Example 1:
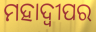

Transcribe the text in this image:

ମହାଦ୍ୱୀପର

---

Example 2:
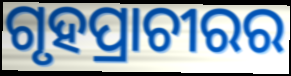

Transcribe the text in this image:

ଗୃହପ୍ରାଚୀରର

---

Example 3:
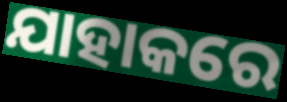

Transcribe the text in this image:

ଯାହାକରେ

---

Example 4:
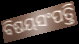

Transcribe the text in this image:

ବିଷୟସଂପତ୍ତି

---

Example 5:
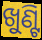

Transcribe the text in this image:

ଖୁଣ୍ଟି